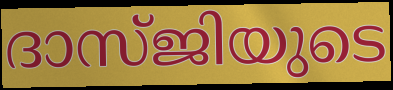
ദാസ്ജിയുടെ